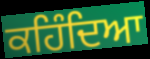
ਕਹਿੰਦਿਆ